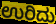
ಉರಿದು